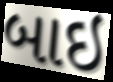
બાઇ